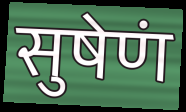
सुषेणं